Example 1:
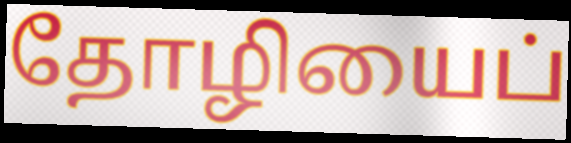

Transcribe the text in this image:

தோழியைப்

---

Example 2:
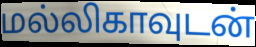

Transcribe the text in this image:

மல்லிகாவுடன்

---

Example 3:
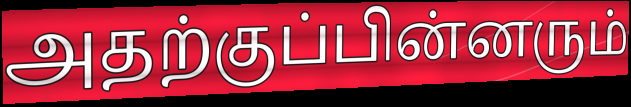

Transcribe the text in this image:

அதற்குப்பின்னரும்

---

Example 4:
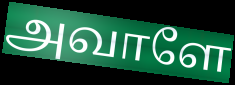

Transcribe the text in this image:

அவாளே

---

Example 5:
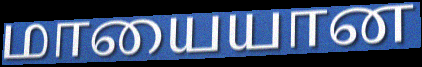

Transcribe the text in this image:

மாயையான